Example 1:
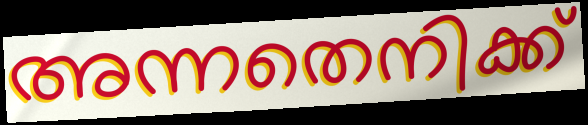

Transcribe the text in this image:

അന്നതെനിക്ക്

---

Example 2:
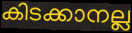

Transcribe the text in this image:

കിടക്കാനല്ല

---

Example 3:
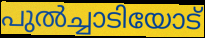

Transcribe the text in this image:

പുൽച്ചാടിയോട്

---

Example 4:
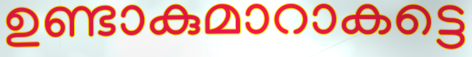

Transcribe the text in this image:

ഉണ്ടാകുമാറാകട്ടെ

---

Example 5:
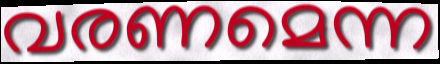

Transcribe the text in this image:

വരണമെന്ന